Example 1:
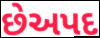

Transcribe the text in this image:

છેઅપદ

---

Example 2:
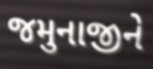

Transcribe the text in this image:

જમુનાજીને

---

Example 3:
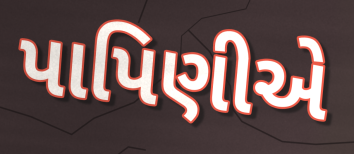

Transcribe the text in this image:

પાપિણીએ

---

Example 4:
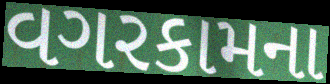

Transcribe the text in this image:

વગરકામના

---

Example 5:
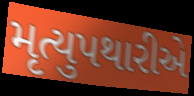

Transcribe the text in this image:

મૃત્યુપથારીએ